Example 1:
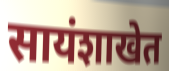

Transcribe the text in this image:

सायंशाखेत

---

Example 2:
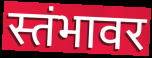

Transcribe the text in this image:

स्तंभावर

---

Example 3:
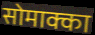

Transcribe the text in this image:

सोमाक्का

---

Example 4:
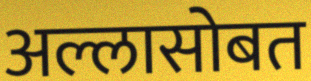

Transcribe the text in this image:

अल्लासोबत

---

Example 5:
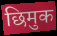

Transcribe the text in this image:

छिमुक